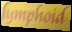
lymphoid